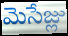
మెసేజ్లు